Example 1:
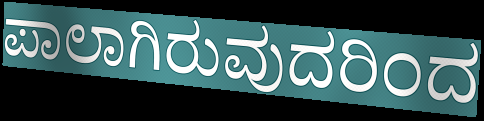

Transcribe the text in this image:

ಪಾಲಾಗಿರುವುದರಿಂದ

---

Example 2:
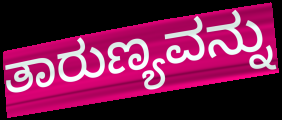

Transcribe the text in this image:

ತಾರುಣ್ಯವನ್ನು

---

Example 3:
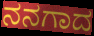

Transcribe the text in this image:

ನನಗಾದ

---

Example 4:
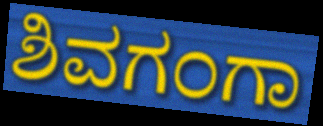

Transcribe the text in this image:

ಶಿವಗಂಗಾ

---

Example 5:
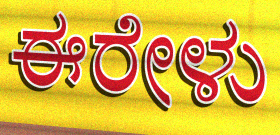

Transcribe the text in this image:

ಈರೇಳು